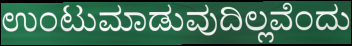
ಉಂಟುಮಾಡುವುದಿಲ್ಲವೆಂದು